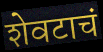
शेवटाचं